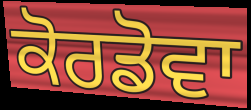
ਕੋਰਡੋਵਾ